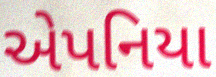
એપનિયા